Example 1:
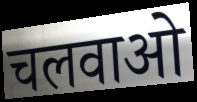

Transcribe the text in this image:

चलवाओ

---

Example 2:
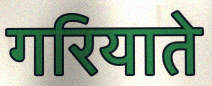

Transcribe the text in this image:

गरियाते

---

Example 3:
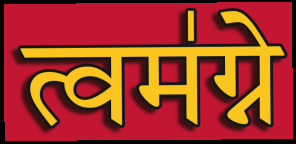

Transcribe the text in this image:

त्वम॑ग्ने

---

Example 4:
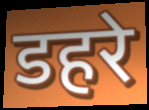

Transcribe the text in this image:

डहरे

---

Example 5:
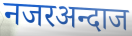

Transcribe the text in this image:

नजरअन्दाज